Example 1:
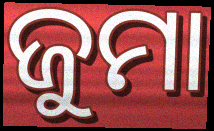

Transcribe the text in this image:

ଜୁମା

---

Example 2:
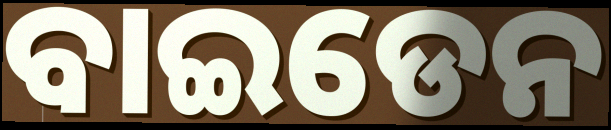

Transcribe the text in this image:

ବାଇଡେନ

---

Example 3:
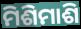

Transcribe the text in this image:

ମିଶିମାଶି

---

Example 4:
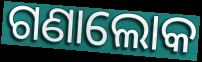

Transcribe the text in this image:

ଗଣାଲୋକ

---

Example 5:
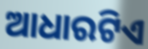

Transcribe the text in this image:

ଆଧାରଟିଏ